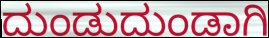
ದುಂಡುದುಂಡಾಗಿ